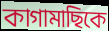
কাগামাছিকে